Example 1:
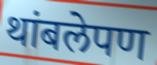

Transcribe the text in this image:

थांबलेपण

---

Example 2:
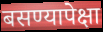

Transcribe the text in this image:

बसण्यापेक्षा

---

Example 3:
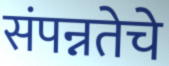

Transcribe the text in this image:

संपन्नतेचे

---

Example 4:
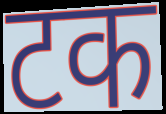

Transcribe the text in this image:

टक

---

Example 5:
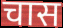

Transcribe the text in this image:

चास